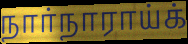
நார்நாராய்க்